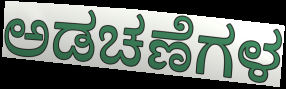
ಅಡಚಣೆಗಳ